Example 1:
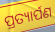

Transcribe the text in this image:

ପ୍ରତ୍ୟାର୍ପଣ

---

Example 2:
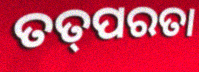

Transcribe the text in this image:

ତତ୍‌ପରତା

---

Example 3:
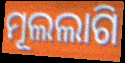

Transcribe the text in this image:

ମୂଲଲାଗି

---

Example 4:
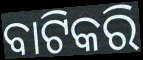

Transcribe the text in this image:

ବାଟିକରି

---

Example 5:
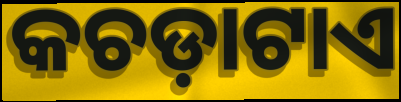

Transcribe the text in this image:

କଚଡ଼ାଟାଏ